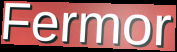
Fermor